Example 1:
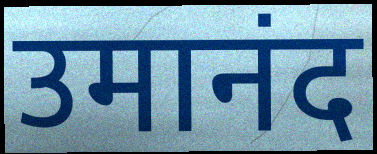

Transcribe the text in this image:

उमानंद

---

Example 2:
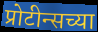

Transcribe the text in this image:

प्रोटीन्सच्या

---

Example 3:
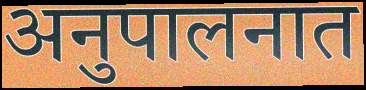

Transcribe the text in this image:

अनुपालनात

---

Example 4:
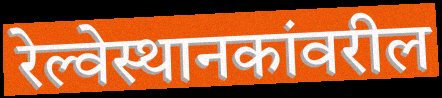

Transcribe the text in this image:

रेल्वेस्थानकांवरील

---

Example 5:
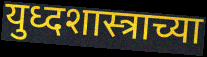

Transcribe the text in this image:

युध्दशास्त्राच्या